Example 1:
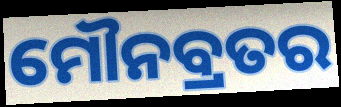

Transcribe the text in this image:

ମୌନବ୍ରତର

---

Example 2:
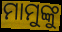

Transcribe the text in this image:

ମାମୁଙ୍କୁ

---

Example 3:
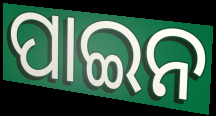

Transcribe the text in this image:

ପାଇନ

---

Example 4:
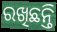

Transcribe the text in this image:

ରଖିଛନ୍ତି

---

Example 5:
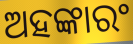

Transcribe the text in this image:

ଅହଙ୍କାରଂ